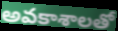
అవకాశాలతో